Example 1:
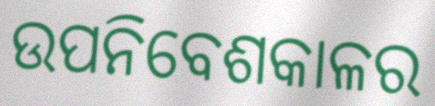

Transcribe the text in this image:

ଉପନିବେଶକାଳର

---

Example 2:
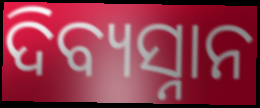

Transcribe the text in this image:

ଦିବ୍ୟସ୍ନାନ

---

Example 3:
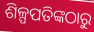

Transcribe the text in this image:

ଶିଳ୍ପପତିଙ୍କଠାରୁ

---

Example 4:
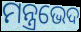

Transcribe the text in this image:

ମନ୍ତ୍ରଭେଦ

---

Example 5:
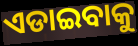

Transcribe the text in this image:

ଏଡାଇବାକୁ